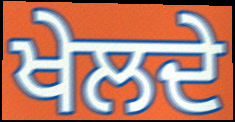
ਖੇਲਦੇ